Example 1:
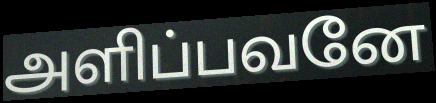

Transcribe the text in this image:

அளிப்பவனே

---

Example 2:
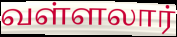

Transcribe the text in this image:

வள்ளலார்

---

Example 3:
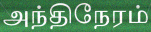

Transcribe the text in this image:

அந்திநேரம்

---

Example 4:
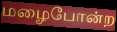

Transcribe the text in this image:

மழைபோன்ற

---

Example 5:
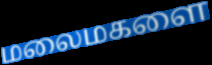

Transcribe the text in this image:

மலைமகளை